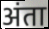
अंता